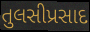
તુલસીપ્રસાદ